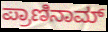
ಪ್ರಾಣಿನಾಮ್